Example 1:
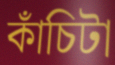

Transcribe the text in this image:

কাঁচিটা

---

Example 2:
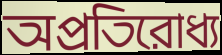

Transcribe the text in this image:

অপ্রতিরোধ্য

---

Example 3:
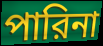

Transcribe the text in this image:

পারিনা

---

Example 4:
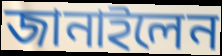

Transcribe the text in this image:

জানাইলেন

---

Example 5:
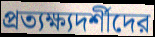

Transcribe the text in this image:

প্রত্যক্ষ্যদর্শীদের